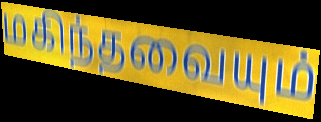
மகிந்தவையும்